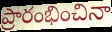
ప్రారంభించినా